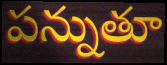
పన్నుతూ